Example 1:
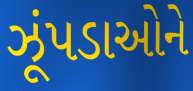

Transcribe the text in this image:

ઝૂંપડાઓને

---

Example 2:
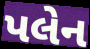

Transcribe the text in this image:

પલેન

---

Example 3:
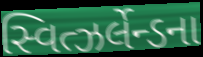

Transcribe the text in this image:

સ્વિત્ઝર્લેન્ડના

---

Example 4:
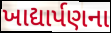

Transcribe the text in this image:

ખાદ્યાર્પણના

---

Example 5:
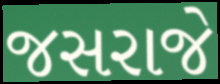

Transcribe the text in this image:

જસરાજે